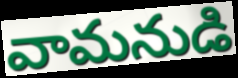
వామనుడి